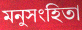
মনুসংহিতা